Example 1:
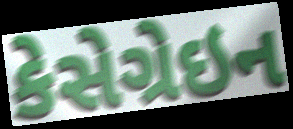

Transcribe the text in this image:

કેસેગ્રેઇન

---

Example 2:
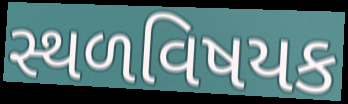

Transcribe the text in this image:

સ્થળવિષયક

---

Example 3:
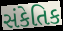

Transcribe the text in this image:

સંકેતિક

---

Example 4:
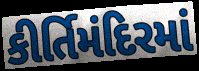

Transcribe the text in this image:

કીર્તિમંદિરમાં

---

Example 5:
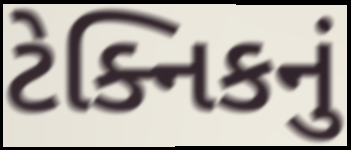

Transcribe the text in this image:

ટેક્નિકનું